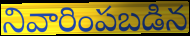
నివారింపబడిన